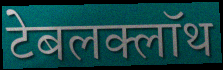
टेबलक्लॉथ